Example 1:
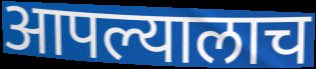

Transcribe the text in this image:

आपल्यालाच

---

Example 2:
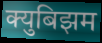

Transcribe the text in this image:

क्युबिझम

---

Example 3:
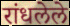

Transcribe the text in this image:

रांधलेले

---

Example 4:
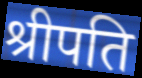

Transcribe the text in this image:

श्रीपति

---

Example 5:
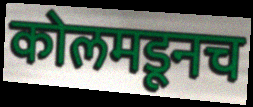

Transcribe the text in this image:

कोलमडूनच